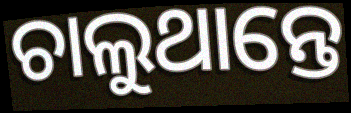
ଚାଲୁଥାନ୍ତେ